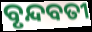
ବୃନ୍ଦବତୀ